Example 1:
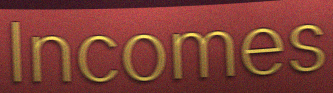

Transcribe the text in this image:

Incomes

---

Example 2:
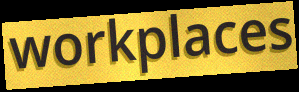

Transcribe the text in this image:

workplaces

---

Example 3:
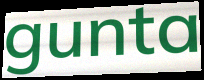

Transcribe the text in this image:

gunta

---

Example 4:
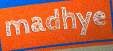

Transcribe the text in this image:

madhye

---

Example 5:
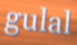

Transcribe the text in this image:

gulal